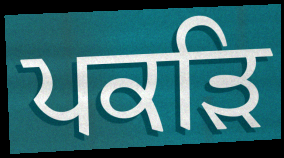
ਪਕੜਿ